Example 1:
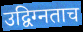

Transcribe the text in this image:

उद्विग्नताच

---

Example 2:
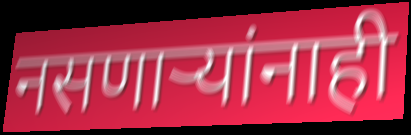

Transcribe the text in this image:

नसणार्‍यांनाही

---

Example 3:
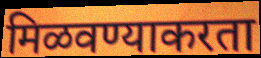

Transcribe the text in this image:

मिळवण्याकरता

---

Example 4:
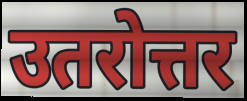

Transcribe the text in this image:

उतरोत्तर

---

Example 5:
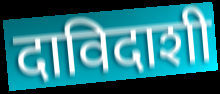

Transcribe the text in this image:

दाविदाशी